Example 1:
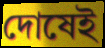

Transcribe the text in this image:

দোষেই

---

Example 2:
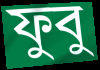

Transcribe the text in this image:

ফুবু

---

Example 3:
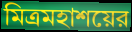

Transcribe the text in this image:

মিত্রমহাশয়ের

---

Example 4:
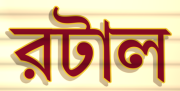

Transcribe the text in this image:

রটাল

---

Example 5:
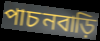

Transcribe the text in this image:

পাচনবাড়ি